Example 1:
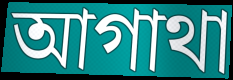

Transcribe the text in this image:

আগাথা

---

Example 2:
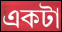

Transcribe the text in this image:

একটা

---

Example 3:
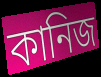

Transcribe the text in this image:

কানিজ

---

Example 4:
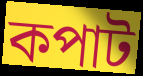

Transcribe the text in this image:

কপাট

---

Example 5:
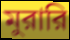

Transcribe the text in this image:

মুরারি